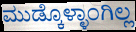
ಮುಡ್ಕೊಳ್ಳಾಂಗಿಲ್ಲ